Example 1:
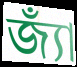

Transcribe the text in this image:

জ্যাঁ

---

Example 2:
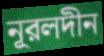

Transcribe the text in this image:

নূরলদীন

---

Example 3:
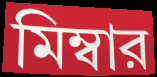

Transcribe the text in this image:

মিম্বার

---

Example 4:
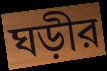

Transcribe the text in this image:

ঘড়ীর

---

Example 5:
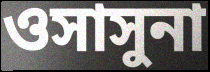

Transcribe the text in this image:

ওসাসুনা